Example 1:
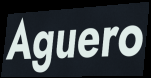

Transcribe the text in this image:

Aguero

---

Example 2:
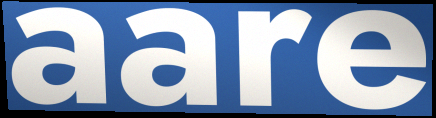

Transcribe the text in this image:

aare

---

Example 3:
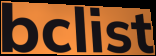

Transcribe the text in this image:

bclist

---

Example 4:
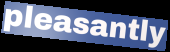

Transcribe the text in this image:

pleasantly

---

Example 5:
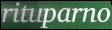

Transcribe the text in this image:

rituparno